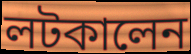
লটকালেন